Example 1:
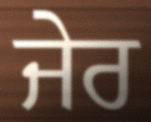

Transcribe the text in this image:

ਜੇਰ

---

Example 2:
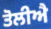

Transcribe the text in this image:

ਤੋਲੀਐ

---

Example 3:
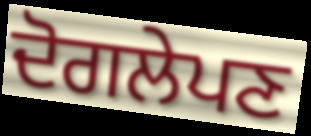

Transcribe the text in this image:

ਦੋਗਲੇਪਣ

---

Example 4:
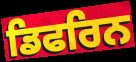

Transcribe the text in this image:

ਡਿਫਰਿਨ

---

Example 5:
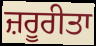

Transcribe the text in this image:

ਜ਼ਰੂਰੀਤਾ